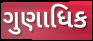
ગુણાધિક